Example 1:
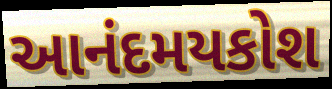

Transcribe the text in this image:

આનંદમયકોશ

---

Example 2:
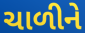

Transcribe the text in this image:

ચાળીને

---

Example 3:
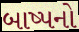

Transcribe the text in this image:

બાષ્પનો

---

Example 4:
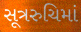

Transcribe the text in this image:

સૂત્રરુચિમાં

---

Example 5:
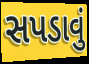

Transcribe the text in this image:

સપડાવું